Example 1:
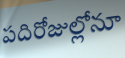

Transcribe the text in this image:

పదిరోజుల్లోనూ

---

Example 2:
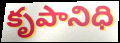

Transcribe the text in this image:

కృపానిధి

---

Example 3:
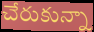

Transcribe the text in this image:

చేరుకున్నా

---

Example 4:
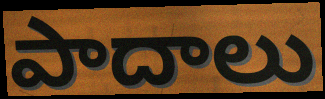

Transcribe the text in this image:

పాదాలు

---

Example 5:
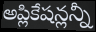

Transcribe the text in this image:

అప్లికేషన్లన్నీ